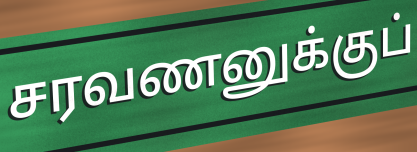
சரவணனுக்குப்